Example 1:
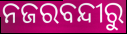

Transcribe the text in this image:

ନଜରବନ୍ଦୀରୁ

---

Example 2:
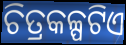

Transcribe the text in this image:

ଚିତ୍ରକଳ୍ପଟିଏ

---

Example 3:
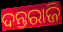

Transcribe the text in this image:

ଦନ୍ତରାଜି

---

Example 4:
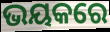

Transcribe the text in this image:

ଭୟକରେ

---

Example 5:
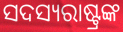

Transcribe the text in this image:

ସଦସ୍ୟରାଷ୍ଟ୍ରଙ୍କ